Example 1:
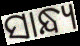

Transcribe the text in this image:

ସାନ୍ଧ୍ୟ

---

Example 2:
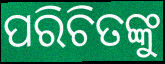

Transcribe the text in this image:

ପରିଚିତଙ୍କୁ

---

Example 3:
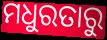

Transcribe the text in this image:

ମଧୁରତାରୁ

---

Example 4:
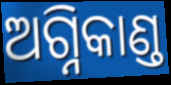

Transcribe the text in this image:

ଅଗ୍ନିକାଣ୍ଡ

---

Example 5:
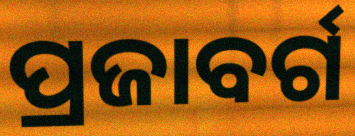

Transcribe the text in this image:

ପ୍ରଜାବର୍ଗ